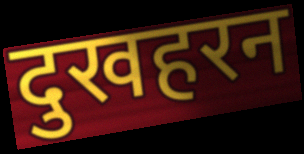
दुखहरन